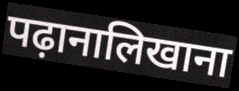
पढ़ानालिखाना